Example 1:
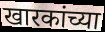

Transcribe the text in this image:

खारकांच्या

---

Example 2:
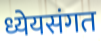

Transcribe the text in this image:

ध्येयसंगत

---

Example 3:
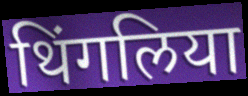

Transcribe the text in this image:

थिंगलिया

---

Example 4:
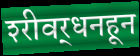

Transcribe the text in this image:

श्रीवर्धनहून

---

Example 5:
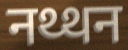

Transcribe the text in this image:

नथ्थन